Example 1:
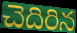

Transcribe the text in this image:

చెదిరిన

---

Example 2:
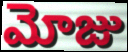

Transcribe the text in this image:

మోజు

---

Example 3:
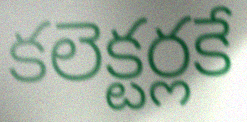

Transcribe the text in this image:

కలెక్టర్లకే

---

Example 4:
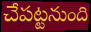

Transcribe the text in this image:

చేపట్టనుంది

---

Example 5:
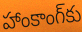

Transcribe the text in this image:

హాంకాంగ్‌కు